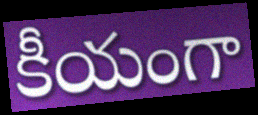
కీయంగా